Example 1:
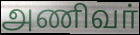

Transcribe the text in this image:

அணிவர்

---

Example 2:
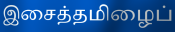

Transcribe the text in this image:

இசைத்தமிழைப்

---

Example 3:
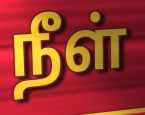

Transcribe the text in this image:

நீள்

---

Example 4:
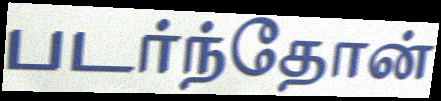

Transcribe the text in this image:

படர்ந்தோன்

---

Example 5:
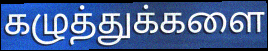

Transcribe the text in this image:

கழுத்துக்களை